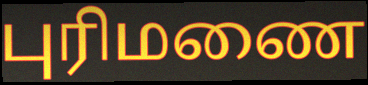
புரிமணை